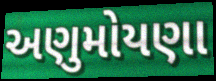
અણુમોયણા